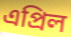
এপ্ৰিল